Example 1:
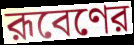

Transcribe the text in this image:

রূবেণের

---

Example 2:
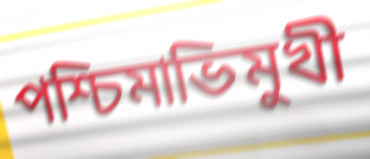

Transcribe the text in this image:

পশ্চিমাভিমুখী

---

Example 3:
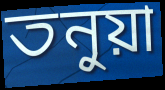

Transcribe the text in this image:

তনুয়া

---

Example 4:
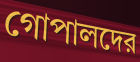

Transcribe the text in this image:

গোপালদের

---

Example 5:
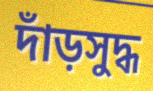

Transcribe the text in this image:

দাঁড়সুদ্ধ